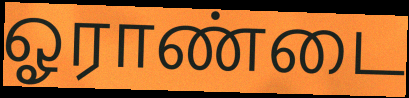
ஓராண்டை